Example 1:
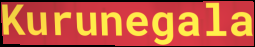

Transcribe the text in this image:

Kurunegala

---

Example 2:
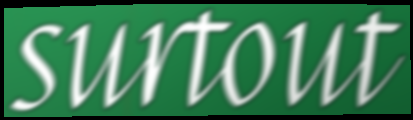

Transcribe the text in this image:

surtout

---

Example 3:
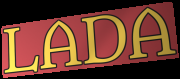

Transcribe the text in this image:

LADA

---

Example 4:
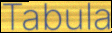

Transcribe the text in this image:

Tabula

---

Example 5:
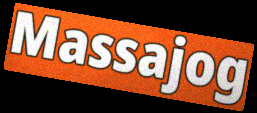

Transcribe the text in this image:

Massajog